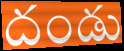
దండు